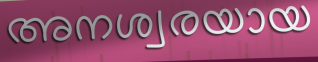
അനശ്വരയായ